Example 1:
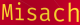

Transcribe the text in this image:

Misach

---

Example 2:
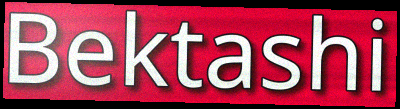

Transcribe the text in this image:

Bektashi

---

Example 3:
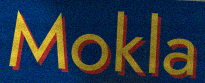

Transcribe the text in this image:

Mokla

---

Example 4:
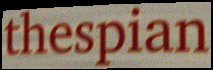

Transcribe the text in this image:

thespian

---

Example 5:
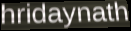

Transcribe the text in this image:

hridaynath